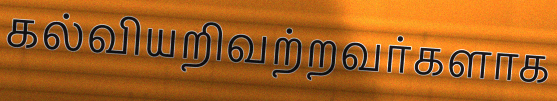
கல்வியறிவற்றவர்களாக